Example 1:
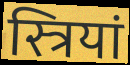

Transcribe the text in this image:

स्त्रियां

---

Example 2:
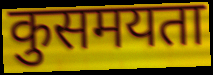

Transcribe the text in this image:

कुसमयता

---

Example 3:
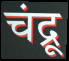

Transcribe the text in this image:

चंद्रू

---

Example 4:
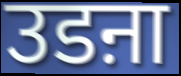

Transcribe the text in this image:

उडऩा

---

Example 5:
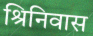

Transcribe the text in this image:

श्रिनिवास